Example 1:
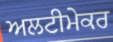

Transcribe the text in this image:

ਅਲਟੀਮੇਕਰ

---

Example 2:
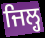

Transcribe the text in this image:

ਜਿਲ੍ਹ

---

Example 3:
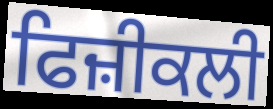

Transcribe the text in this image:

ਫਿਜ਼ੀਕਲੀ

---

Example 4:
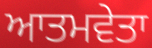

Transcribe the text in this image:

ਆਤਮਵੇਤਾ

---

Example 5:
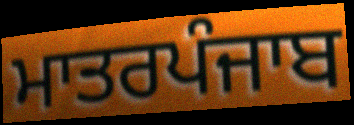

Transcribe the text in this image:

ਮਾਤਰਪੰਜਾਬ